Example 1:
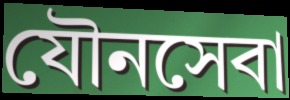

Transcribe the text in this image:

যৌনসেবা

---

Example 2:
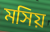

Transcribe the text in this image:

মসিয়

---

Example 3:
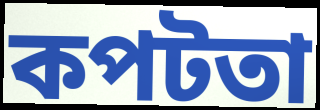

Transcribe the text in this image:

কপটতা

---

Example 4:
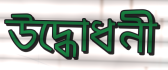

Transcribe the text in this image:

উদ্ধোধনী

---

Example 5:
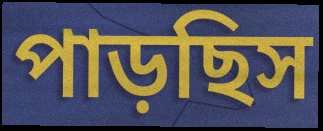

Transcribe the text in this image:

পাড়ছিস